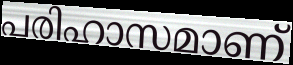
പരിഹാസമാണ്